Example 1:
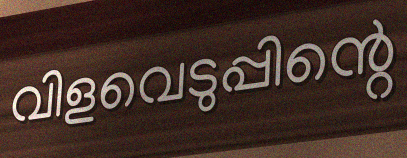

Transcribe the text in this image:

വിളവെടുപ്പിന്റെ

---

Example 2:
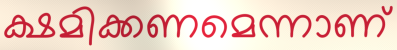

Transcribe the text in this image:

ക്ഷമിക്കണമെന്നാണ്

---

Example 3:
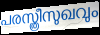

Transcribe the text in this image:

പരസ്ത്രീസുഖവും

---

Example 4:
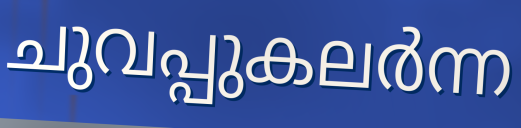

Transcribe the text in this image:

ചുവപ്പുകലർന്ന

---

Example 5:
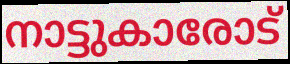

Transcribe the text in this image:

നാട്ടുകാരോട്